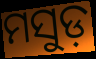
ମସୁଡ଼